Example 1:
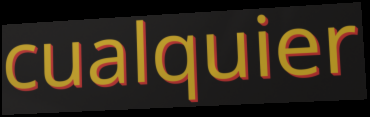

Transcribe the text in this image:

cualquier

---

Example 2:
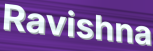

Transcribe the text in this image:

Ravishna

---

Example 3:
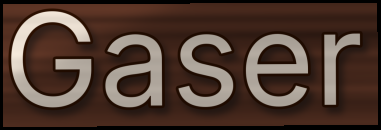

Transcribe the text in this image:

Gaser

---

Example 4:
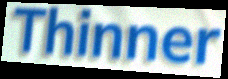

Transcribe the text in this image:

Thinner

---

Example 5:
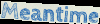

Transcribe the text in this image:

Meantime